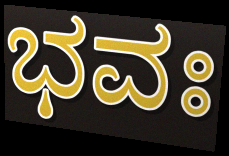
ಭವಃ